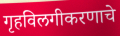
गृहविलगीकरणाचे